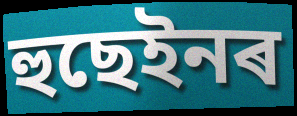
হুছেইনৰ